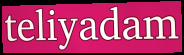
teliyadam